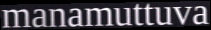
manamuttuva